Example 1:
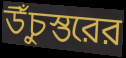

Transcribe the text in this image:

উঁচুস্তরের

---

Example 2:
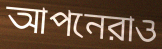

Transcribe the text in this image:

আপনেরাও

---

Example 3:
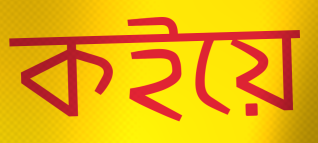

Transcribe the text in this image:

কইয়ে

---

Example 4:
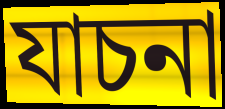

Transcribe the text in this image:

যাচনা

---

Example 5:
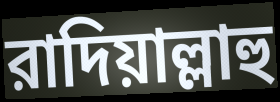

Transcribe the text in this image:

রাদিয়াল্লাহু